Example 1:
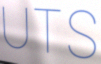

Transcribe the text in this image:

UTS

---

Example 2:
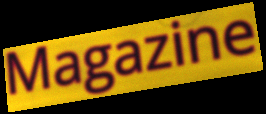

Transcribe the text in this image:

Magazine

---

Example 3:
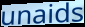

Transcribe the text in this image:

unaids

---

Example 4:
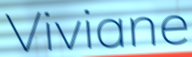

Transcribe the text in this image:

Viviane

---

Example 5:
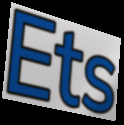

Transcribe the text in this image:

Ets